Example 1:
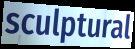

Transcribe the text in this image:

sculptural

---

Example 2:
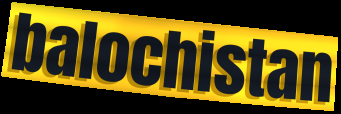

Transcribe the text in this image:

balochistan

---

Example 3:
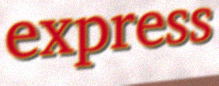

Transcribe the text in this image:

express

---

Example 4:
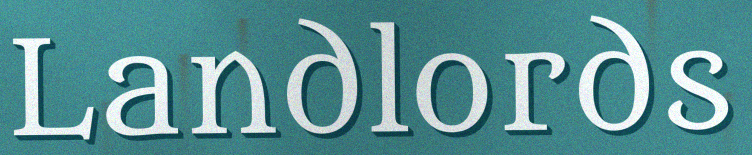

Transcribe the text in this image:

Landlords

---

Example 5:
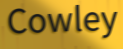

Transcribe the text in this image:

Cowley